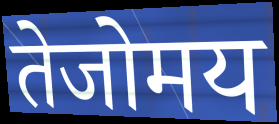
तेजोमय